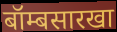
बॉम्बसारखा